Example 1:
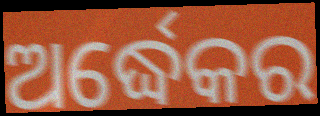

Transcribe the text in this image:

ଅର୍ଦ୍ଧେକର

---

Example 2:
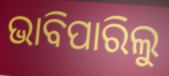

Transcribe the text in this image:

ଭାବିପାରିଲୁ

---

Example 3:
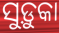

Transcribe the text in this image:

ସୁଡ଼ୁକା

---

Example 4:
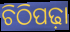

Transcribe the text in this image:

ଚିଠିପଢ଼ା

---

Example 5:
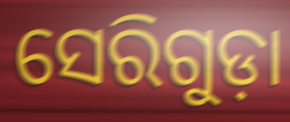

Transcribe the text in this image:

ସେରିଗୁଡ଼ା